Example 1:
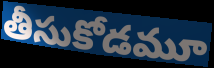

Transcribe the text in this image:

తీసుకోడమూ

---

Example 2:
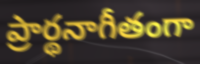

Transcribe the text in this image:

ప్రార్థనాగీతంగా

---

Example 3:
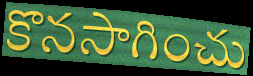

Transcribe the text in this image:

కొనసాగించు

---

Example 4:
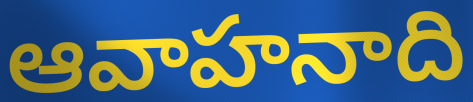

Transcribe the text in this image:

ఆవాహనాది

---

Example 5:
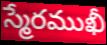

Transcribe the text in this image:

స్మేరముఖీ